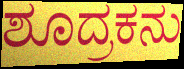
ಶೂದ್ರಕನು